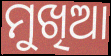
ମୁଖିଆ